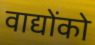
वाद्योंको